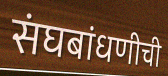
संघबांधणीची